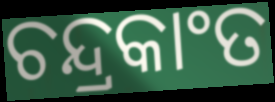
ଚନ୍ଦ୍ରକାଂତ